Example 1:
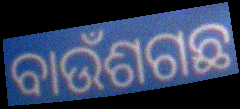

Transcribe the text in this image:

ବାଉଁଶଗଛ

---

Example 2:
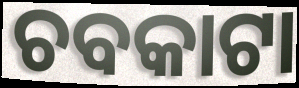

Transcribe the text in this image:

ଚବକାଟା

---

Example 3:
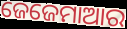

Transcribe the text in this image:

ଜେଜେମାଆର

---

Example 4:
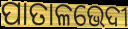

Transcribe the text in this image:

ପାତାଳଭେଦୀ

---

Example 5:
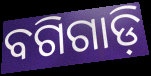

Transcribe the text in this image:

ବଗିଗାଡ଼ି